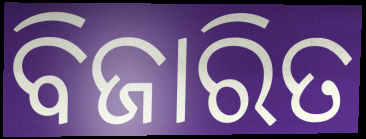
ବିଜାରିତ